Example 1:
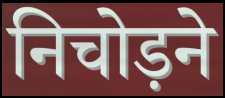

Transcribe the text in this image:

निचोड़ने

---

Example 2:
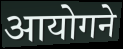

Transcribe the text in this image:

आयोगने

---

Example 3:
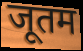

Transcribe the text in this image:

जूतम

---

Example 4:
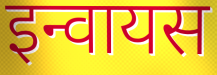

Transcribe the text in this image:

इन्वायस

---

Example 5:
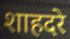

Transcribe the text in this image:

शाहदरे